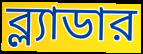
ব্ল্যাডার